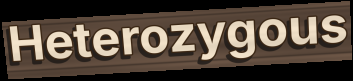
Heterozygous